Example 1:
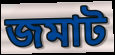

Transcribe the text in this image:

জমাট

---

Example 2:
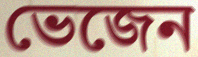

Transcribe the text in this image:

ভেজেন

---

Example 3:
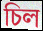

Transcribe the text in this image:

চিল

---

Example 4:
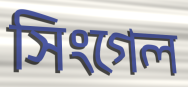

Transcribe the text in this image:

সিংগেল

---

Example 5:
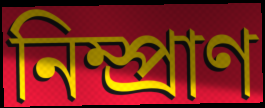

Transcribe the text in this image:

নিম্প্রাণ